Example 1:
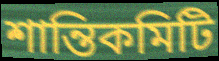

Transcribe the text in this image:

শান্তিকমিটি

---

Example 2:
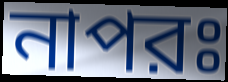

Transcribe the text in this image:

নাপরঃ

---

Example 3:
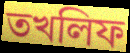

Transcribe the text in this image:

তখলিফ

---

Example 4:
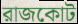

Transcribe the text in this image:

রাজকোট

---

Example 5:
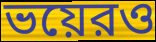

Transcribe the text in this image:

ভয়েরও